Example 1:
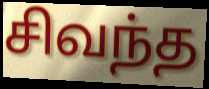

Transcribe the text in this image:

சிவந்த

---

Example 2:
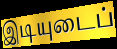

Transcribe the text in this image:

இடியுடைப்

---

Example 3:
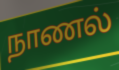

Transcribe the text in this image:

நாணல்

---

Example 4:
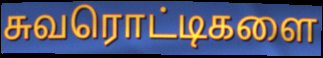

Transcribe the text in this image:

சுவரொட்டிகளை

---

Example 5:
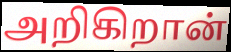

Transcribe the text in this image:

அறிகிறான்